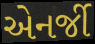
એનર્જી